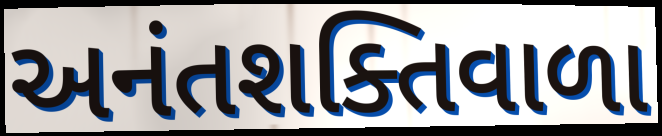
અનંતશક્તિવાળા